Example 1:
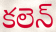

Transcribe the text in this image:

కలెన్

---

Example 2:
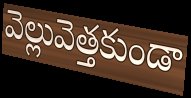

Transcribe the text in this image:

వెల్లువెత్తకుండా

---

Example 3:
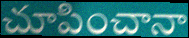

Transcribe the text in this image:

చూపించానా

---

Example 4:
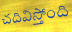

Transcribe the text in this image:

చదివిస్తోంది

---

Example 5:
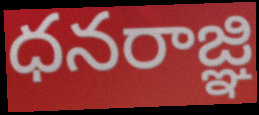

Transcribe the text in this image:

ధనరాజ్ఞి